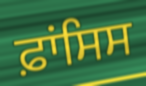
ਫ਼ਾਂਸਿਸ